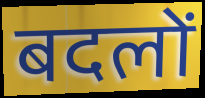
बदलों